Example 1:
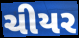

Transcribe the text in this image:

ચીયર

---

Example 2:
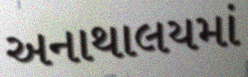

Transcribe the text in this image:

અનાથાલયમાં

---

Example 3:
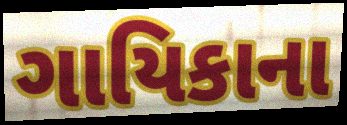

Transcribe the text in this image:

ગાયિકાના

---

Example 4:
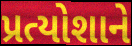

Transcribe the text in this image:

પ્રત્યોશાને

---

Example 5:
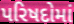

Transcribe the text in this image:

પરિષદોમાં